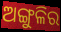
ଅଙ୍ଗୁଳିର